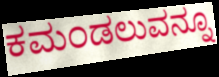
ಕಮಂಡಲುವನ್ನೂ